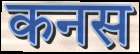
कनस